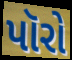
પૉરો